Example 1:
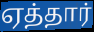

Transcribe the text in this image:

ஏத்தார்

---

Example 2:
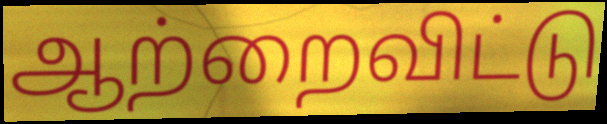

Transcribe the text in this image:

ஆற்றைவிட்டு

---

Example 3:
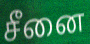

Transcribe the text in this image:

சீனை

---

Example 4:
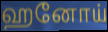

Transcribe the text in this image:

ஹனோய்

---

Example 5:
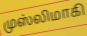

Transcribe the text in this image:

முஸ்லிமாகி